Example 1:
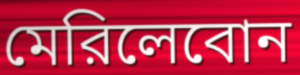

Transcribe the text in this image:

মেরিলেবোন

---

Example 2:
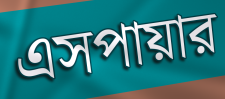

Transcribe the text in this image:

এসপায়ার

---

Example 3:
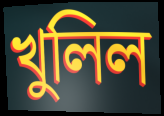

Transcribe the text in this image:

খুলিল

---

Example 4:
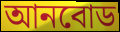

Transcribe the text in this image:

আনবোড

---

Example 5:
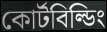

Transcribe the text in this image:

কোর্টবিল্ডিং